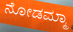
ನೋಡಮ್ಮಾ